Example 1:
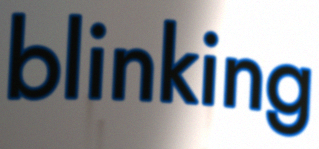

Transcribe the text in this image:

blinking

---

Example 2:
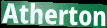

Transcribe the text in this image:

Atherton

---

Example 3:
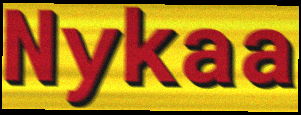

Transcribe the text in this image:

Nykaa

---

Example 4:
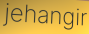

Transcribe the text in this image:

jehangir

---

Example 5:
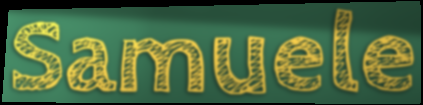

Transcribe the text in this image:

Samuele